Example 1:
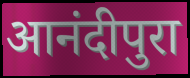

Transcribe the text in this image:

आनंदीपुरा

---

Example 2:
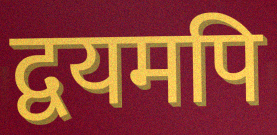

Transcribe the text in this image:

द्वयमपि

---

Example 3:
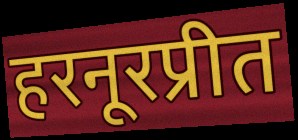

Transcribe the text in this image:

हरनूरप्रीत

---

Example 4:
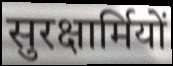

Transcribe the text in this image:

सुरक्षार्मियों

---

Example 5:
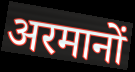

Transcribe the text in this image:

अरमानों